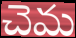
చెమ